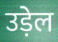
उड़ेल